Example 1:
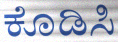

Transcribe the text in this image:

ಕೊಡಿಸಿ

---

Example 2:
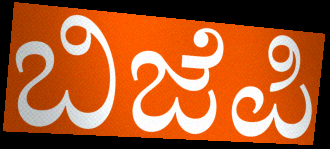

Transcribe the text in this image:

ಬಿಜೆಪಿ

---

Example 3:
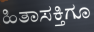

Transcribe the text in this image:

ಹಿತಾಸಕ್ತಿಗೂ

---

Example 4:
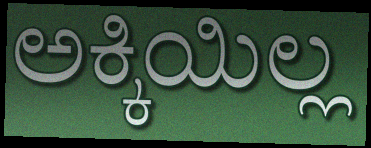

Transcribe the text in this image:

ಅಕ್ಕಿಯಿಲ್ಲ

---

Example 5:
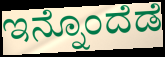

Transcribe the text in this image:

ಇನ್ನೊಂದೆಡೆ